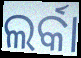
ଲର୍କା